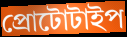
প্রোটোটাইপ